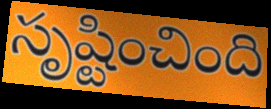
సృష్టించింది